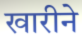
खारीने